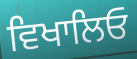
ਵਿਖਾਲਿਓ